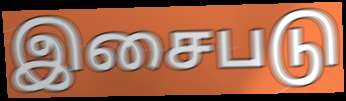
இசைபடு